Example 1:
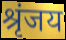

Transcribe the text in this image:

श्रृंजय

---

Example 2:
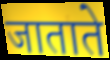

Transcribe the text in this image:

जाताते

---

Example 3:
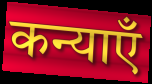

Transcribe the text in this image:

कन्याएँ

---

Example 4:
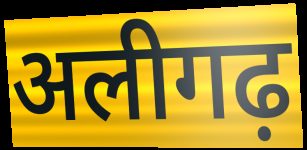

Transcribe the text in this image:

अलीगढ़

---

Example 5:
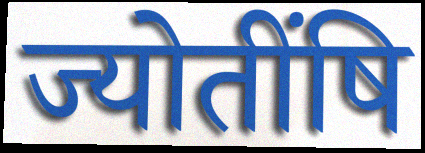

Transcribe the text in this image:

ज्योतींषि